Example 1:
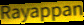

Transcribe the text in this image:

Rayappan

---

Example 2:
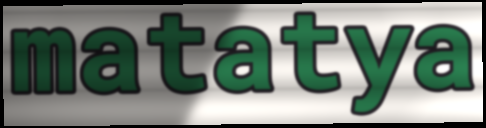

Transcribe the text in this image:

matatya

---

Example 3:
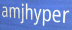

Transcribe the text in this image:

amjhyper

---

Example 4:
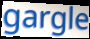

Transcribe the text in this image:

gargle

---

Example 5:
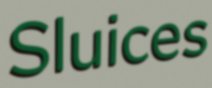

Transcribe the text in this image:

Sluices